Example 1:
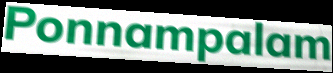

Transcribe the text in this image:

Ponnampalam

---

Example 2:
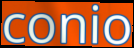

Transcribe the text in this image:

conio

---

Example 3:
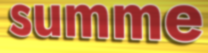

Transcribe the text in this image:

summe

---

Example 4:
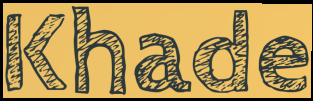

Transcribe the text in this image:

Khade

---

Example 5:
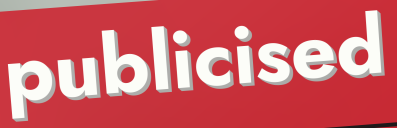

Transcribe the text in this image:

publicised